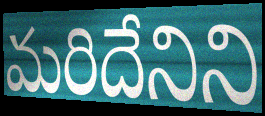
మరిదేనిని